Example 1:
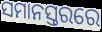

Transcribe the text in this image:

ସମାନସ୍ତରରେ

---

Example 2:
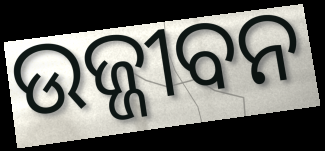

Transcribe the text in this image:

ଉଜ୍ଜୀବନ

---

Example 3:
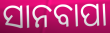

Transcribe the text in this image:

ସାନବାପା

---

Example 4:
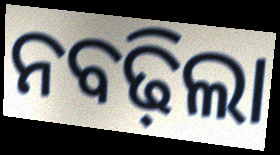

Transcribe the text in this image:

ନବଢ଼ିଲା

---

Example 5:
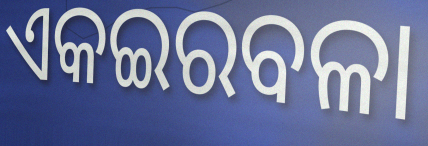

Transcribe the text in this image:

ଏକଇରବଳା